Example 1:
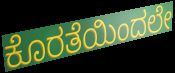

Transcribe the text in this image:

ಕೊರತೆಯಿಂದಲೇ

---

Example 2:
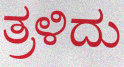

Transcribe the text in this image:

ತ್ರಳಿದು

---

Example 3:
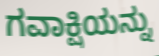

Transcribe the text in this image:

ಗವಾಕ್ಷಿಯನ್ನು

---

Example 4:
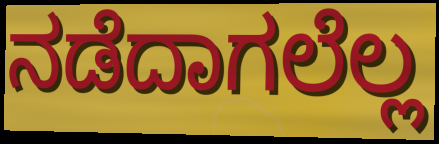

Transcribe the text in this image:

ನಡೆದಾಗಲೆಲ್ಲ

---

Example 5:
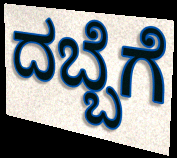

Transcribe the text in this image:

ದಬ್ಬೆಗೆ